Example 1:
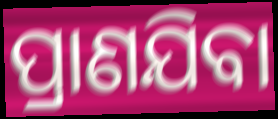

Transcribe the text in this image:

ପ୍ରାଣଯିବା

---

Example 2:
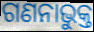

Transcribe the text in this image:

ଗଣନାଭୁକ୍ତ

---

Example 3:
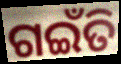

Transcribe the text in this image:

ଗଇଁତି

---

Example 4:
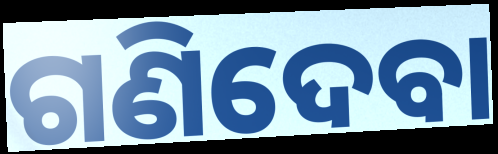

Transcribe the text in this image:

ଗଣିଦେବା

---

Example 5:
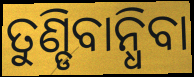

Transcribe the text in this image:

ତୁଣ୍ଡିବାନ୍ଧିବା